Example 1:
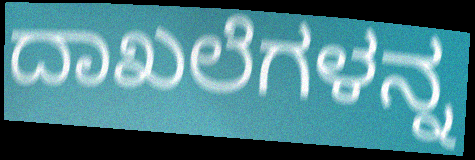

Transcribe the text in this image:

ದಾಖಲೆಗಳನ್ನ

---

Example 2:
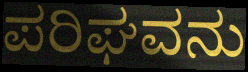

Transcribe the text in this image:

ಪರಿಘವನು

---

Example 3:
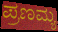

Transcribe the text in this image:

ಪ್ರಣಮ್ಯ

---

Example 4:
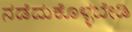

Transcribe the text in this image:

ನಡೆದುಕೊಳ್ಳಬೇಡಿ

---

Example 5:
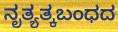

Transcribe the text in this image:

ನೃತ್ಯತ್ಕಬಂಧದ